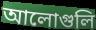
আলোগুলি